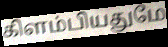
கிளம்பியதுமே